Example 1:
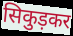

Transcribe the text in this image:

सिकुड़कर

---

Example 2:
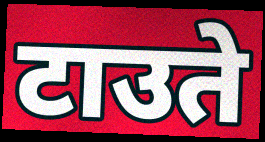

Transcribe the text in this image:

टाउते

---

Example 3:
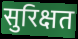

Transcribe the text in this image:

सुरिक्षत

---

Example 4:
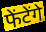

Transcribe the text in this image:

फेंटेंगे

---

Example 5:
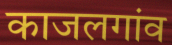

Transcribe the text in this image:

काजलगांव